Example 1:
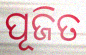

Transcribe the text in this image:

ପୂଜିତ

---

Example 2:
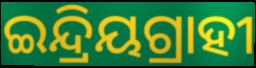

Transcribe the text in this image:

ଇନ୍ଦ୍ରିୟଗ୍ରାହୀ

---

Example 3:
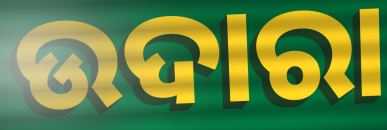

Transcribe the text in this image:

ଉଦାରା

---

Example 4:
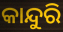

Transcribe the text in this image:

କାନ୍ଦୁରି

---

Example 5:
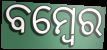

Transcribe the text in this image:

ବମ୍ୱେର